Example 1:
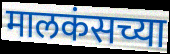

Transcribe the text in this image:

मालकंसच्या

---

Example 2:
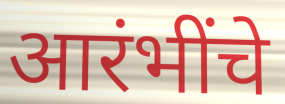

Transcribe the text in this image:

आरंभींचे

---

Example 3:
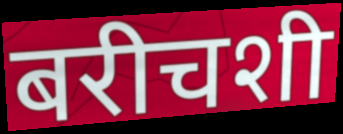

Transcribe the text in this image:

बरीचशी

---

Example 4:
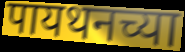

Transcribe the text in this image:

पायथनच्या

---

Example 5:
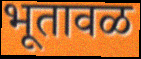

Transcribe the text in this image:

भूतावळ